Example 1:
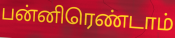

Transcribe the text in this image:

பன்னிரெண்டாம்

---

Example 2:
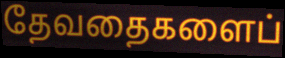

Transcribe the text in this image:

தேவதைகளைப்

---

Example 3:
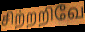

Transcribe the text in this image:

சிற்றறிவே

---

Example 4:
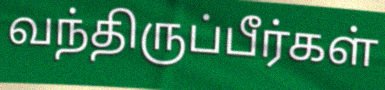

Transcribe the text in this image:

வந்திருப்பீர்கள்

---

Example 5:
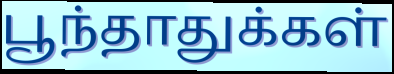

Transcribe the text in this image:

பூந்தாதுக்கள்